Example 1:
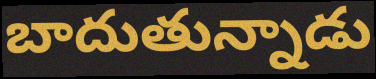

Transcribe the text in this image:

బాదుతున్నాడు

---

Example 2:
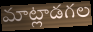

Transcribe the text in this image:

మాట్లాడగల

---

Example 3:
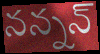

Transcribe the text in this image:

నన్నన్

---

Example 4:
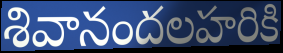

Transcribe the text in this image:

శివానందలహరికి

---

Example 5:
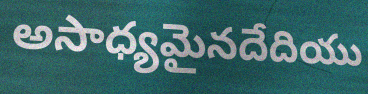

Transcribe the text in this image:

అసాధ్యమైనదేదియు